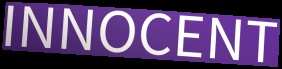
INNOCENT